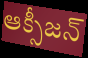
ఆక్సీజన్